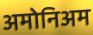
अमोनिअम